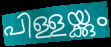
പിള്ളയ്ക്കും